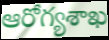
ఆరోగ్యశాఖ